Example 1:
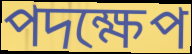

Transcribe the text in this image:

পদক্ষেপ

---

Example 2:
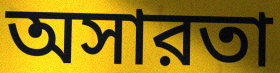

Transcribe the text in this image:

অসারতা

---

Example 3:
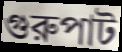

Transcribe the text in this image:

গুরুপাট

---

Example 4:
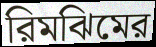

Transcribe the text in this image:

রিমঝিমের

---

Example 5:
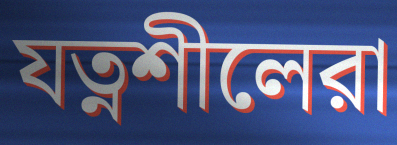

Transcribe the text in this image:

যত্নশীলেরা